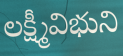
లక్ష్మీవిభుని